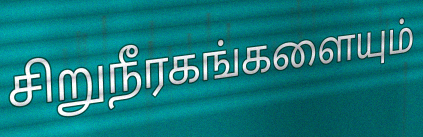
சிறுநீரகங்களையும்